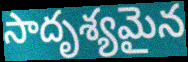
సాదృశ్యమైన